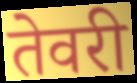
तेवरी